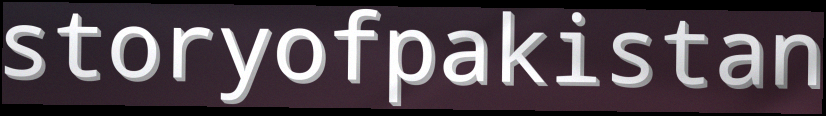
storyofpakistan